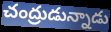
చంద్రుడున్నాడు